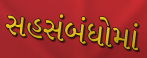
સહસંબંધોમાં